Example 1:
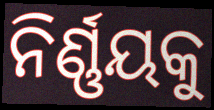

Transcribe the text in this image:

ନିର୍ଣ୍ଣୟକୁ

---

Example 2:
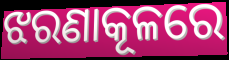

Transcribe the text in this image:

ଝରଣାକୂଳରେ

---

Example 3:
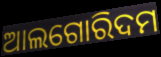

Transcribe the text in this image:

ଆଲଗୋରିଦମ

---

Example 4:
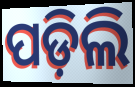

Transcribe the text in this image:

ପଡ଼ିଲି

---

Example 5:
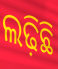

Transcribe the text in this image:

ଲଢ଼ିଛି